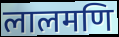
लालमणि